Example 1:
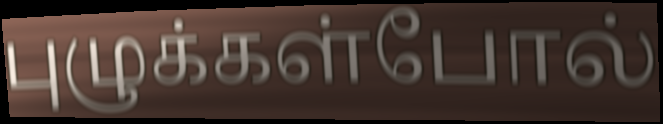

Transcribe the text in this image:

புழுக்கள்போல்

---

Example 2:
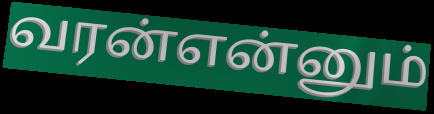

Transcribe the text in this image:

வரன்என்னும்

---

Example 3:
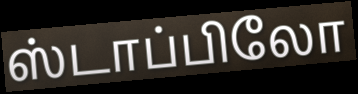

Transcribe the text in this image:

ஸ்டாப்பிலோ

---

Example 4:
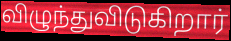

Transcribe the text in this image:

விழுந்துவிடுகிறார்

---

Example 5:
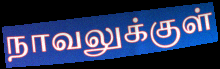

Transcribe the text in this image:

நாவலுக்குள்